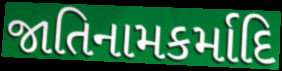
જાતિનામકર્માદિ